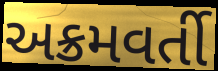
અક્રમવર્તી